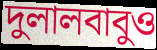
দুলালবাবুও